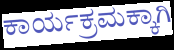
ಕಾರ್ಯಕ್ರಮಕ್ಕಾಗಿ